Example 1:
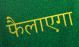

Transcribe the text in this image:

फैलाएगा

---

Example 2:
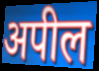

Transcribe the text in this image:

अपील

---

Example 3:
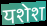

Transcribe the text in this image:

यशेश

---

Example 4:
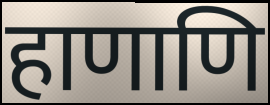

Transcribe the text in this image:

हाणाणि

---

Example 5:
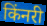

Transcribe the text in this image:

किंनरी